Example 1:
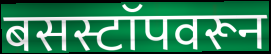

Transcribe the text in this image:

बसस्टॉपवरून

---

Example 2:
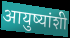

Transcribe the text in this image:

आयुष्यांशी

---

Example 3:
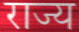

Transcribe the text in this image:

राज्य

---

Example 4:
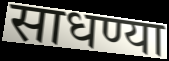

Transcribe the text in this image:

साधण्या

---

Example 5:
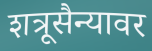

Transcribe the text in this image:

शत्रूसैन्यावर